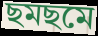
ছমছমে